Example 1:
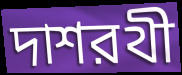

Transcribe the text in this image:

দাশরথী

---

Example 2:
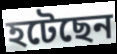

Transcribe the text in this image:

হটেছেন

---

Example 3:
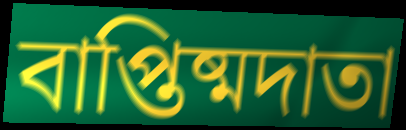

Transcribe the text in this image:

বাপ্তিষ্মদাতা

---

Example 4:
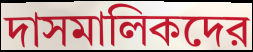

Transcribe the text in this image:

দাসমালিকদের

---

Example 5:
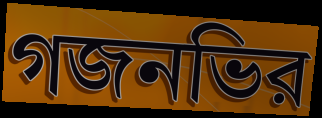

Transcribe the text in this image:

গজনভির